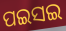
ପଇସଇ